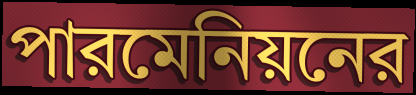
পারমেনিয়নের